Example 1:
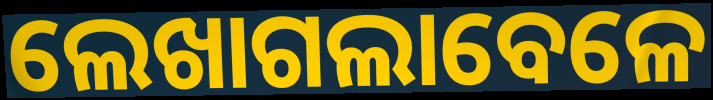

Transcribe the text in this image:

ଲେଖାଗଲାବେଳେ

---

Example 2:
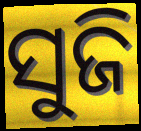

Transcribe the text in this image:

ସୁଜି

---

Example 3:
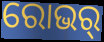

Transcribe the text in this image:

ରୋଭର୍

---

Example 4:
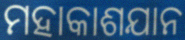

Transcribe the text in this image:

ମହାକାଶଯାନ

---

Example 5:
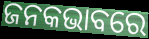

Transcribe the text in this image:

ଜନକଭାବରେ